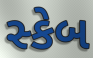
સ્કેબ